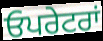
ਓਪਰੇਟਰਾਂ